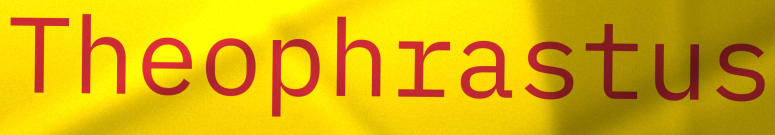
Theophrastus